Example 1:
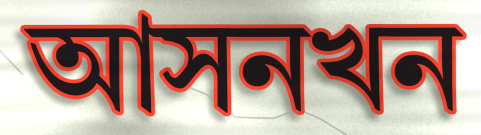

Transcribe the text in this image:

আসনখন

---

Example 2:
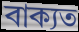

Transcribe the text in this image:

বাক্যত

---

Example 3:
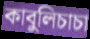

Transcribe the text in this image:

কাবুলিচাচা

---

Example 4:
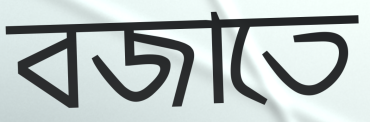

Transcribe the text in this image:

বজাতে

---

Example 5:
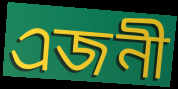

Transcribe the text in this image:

এজনী